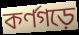
কর্ণগড়ে